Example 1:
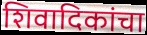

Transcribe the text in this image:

शिवादिकांचा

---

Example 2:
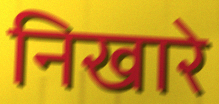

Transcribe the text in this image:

निखारे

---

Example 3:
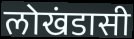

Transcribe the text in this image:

लोखंडासी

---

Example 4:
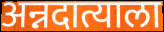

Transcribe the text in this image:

अन्नदात्याला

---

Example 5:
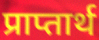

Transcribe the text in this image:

प्राप्तार्थ